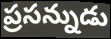
ప్రసన్నుడు